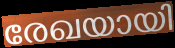
രേഖയായി